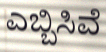
ಎಬ್ಬಿಸಿವೆ